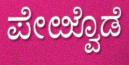
ಪೇೞ್ವೊಡೆ